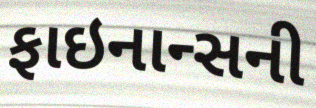
ફાઇનાન્સની